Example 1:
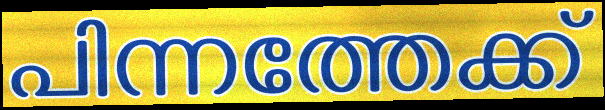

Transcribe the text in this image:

പിന്നത്തേക്ക്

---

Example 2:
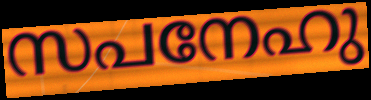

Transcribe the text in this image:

സപനേഹു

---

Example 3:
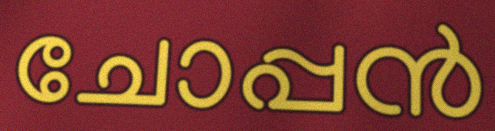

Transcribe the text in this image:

ചോപ്പൻ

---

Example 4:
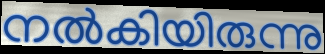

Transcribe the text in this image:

നൽകിയിരുന്നു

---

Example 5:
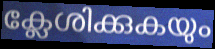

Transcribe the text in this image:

ക്ലേശിക്കുകയും